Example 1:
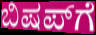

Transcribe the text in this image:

ಬಿಷಪ್‌ಗೆ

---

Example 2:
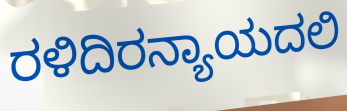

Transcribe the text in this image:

ರಳಿದಿರನ್ಯಾಯದಲಿ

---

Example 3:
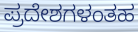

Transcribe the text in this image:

ಪ್ರದೇಶಗಳಂತಹ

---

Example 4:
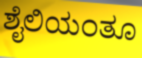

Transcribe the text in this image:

ಶೈಲಿಯಂತೂ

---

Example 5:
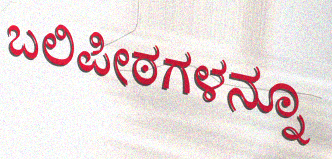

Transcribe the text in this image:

ಬಲಿಪೀಠಗಳನ್ನೂ